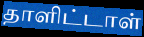
தாளிட்டாள்